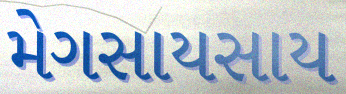
મેગસાયસાય